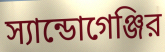
স্যান্ডোগেঞ্জির